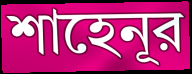
শাহেনূর